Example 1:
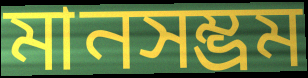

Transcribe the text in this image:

মানসম্ভ্রম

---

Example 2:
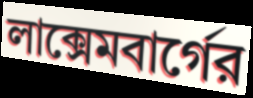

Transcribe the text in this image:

লাক্সেমবার্গের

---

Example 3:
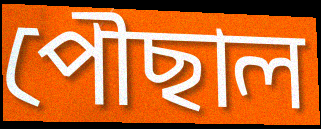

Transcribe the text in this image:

পৌছাল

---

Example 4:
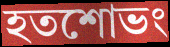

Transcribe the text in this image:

হতশোভং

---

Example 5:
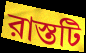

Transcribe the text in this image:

রাস্তটি